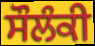
ਸੌਲੰਕੀ